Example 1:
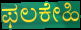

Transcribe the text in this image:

ಫಲಕೇಹಿ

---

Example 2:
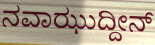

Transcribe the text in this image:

ನವಾಝುದ್ದೀನ್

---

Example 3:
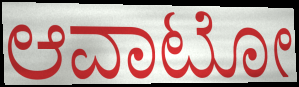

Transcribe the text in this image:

ಆವಾಟೋ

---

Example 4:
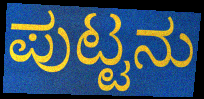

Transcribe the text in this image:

ಪುಟ್ಟನು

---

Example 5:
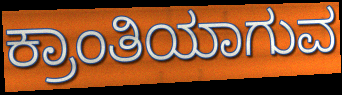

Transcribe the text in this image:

ಕ್ರಾಂತಿಯಾಗುವ